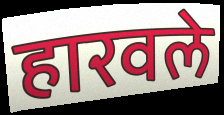
हारवले